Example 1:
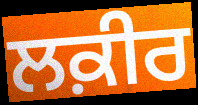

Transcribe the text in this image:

ਲਕ਼ੀਰ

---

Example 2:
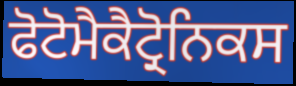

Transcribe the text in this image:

ਫੋਟੋਮੈਕੈਟ੍ਰੋਨਿਕਸ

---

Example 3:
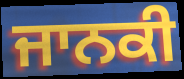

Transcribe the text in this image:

ਜਾਨਕੀ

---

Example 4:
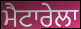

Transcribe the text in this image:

ਮੈਟਾਰੇਲਾ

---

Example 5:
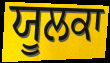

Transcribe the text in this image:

ਯੂਲਕਾ